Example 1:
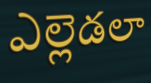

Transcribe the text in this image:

ఎల్లెడలా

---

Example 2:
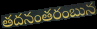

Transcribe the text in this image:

తదనంతరంబున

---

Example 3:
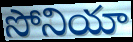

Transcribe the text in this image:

సోనియా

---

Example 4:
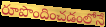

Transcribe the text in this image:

రూపొందించడంలోనే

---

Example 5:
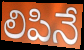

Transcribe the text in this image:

లిపినే